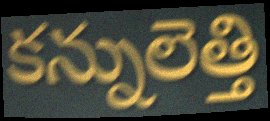
కన్నులెత్తి